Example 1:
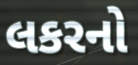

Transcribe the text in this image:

લકરનો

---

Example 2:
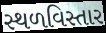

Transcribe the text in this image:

સ્થળવિસ્તાર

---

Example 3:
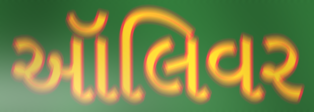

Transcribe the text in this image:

ઑલિવર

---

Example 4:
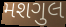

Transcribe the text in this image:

મશગુલ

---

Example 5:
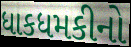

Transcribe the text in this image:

ધાકધમકીનો